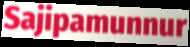
Sajipamunnur